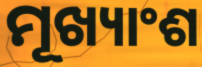
ମୂଖ୍ୟାଂଶ